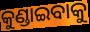
କୁଣ୍ଡାଇବାକୁ